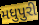
મધુપુરી